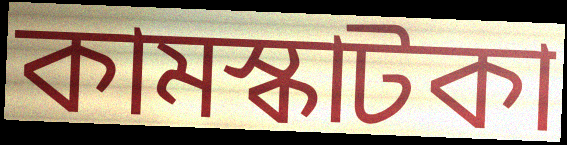
কামস্কাটকা